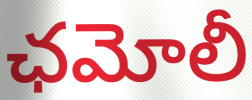
ఛమోలీ